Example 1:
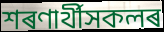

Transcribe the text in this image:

শৰণাৰ্থীসকলৰ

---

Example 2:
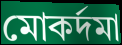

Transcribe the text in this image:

মোকৰ্দমা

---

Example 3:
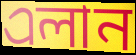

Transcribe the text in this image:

এলান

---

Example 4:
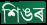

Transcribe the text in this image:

শিঙৰ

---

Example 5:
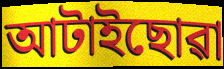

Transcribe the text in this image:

আটাইছোৱা